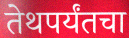
तेथपर्यंतचा